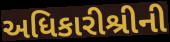
અધિકારીશ્રીની